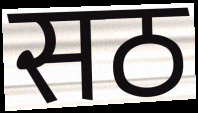
सठ